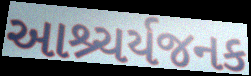
આશ્ર્ચર્યજનક